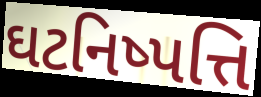
ઘટનિષ્પત્તિ